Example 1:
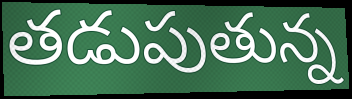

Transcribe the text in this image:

తడుపుతున్న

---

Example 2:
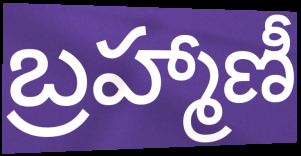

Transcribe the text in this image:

బ్రహ్మాణీ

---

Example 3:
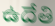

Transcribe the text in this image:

ఉదేతి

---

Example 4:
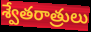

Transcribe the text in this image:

శ్వేతరాత్రులు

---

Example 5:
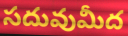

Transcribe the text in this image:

సదువుమీద